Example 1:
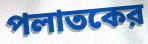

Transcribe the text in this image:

পলাতকের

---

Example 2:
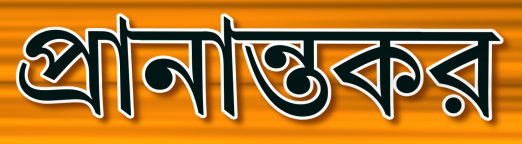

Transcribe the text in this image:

প্রানান্তকর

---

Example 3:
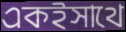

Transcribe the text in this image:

একইসাথে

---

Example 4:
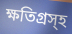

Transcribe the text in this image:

ক্ষতিগ্রস্হ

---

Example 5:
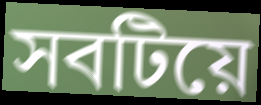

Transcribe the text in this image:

সবটিয়ে